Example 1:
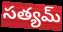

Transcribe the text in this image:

సత్యమ్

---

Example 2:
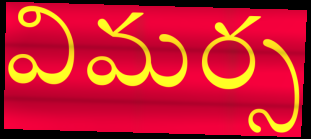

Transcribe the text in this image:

విమర్స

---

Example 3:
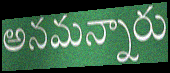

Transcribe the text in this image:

అనమన్నారు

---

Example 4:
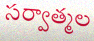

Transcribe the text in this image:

సర్వాత్మల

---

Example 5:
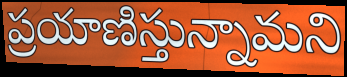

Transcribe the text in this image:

ప్రయాణిస్తున్నామని